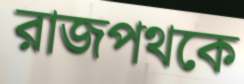
রাজপথকে